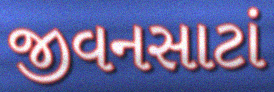
જીવનસાટાં